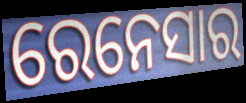
ରେନେସାର